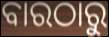
ବାରଠାରୁ